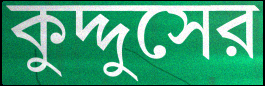
কুদ্দুসের